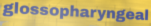
glossopharyngeal